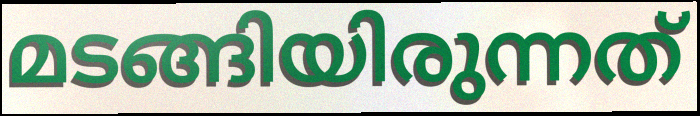
മടങ്ങിയിരുന്നത്